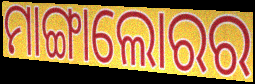
ମାଙ୍ଗାଲୋରର